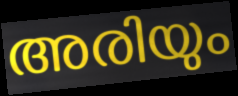
അരിയും